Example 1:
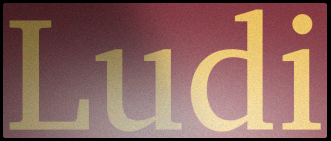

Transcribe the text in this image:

Ludi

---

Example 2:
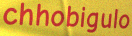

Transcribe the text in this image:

chhobigulo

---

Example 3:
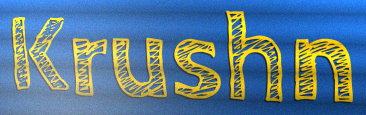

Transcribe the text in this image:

Krushn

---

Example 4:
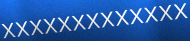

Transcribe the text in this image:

xxxxxxxxxxxxx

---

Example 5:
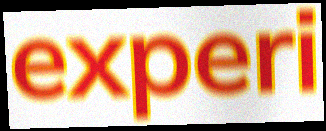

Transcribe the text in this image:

experi